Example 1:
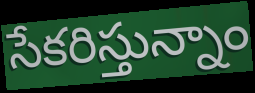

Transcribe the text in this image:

సేకరిస్తున్నాం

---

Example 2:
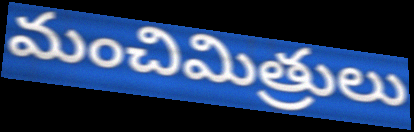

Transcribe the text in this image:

మంచిమిత్రులు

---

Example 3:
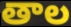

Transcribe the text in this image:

తాల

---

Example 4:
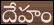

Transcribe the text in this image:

దేహం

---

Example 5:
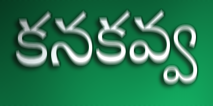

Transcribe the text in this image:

కనకవ్వ